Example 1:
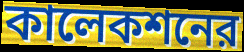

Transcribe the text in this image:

কালেকশনের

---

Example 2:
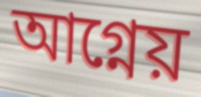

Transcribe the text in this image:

আগ্নেয়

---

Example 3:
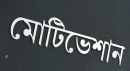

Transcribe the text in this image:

মোটিভেশান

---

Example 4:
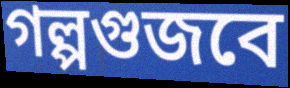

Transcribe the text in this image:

গল্পগুজবে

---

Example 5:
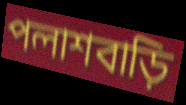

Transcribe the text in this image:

পলাশবাড়ি